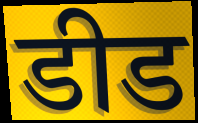
डीड